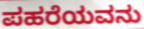
ಪಹರೆಯವನು